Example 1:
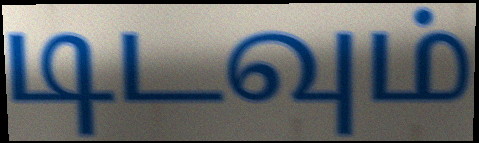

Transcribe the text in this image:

டிடவும்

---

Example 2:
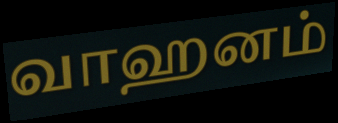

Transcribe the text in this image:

வாஹனம்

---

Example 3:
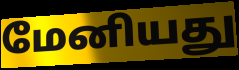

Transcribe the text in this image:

மேனியது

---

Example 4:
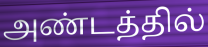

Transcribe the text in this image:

அண்டத்தில்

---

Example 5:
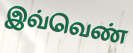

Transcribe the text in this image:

இவ்வெண்